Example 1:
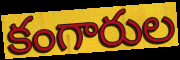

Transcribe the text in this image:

కంగారుల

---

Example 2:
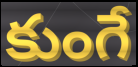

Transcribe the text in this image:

కుంగే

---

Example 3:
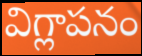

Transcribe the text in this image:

విగ్లాపనం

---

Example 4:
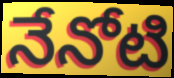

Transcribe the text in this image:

నేనోటి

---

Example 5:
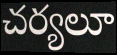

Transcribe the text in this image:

చర్యలూ